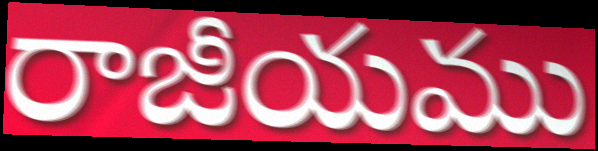
రాజీయము